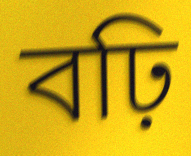
বঢ়ি